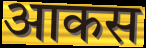
आकस